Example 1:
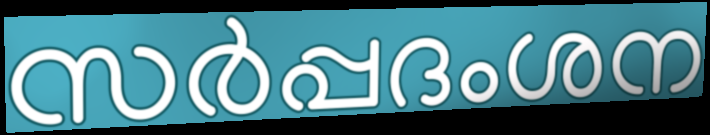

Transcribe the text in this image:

സർപ്പദംശന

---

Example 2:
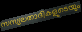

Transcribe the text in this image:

സസ്യലതാദികളുടെയും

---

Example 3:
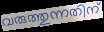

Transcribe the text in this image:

വരുത്തുന്നതിന്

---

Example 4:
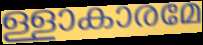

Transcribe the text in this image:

ള്ളാകാരമേ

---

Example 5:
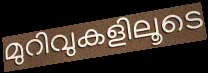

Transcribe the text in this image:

മുറിവുകളിലൂടെ